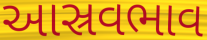
આસ્રવભાવ